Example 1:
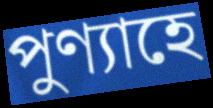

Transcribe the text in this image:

পুণ্যাহে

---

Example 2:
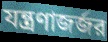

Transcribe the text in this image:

যন্ত্রণাজর্জর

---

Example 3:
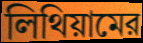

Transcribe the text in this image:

লিথিয়ামের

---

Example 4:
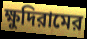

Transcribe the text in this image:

ক্ষুদিরামের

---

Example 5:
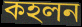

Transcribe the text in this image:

কহলন